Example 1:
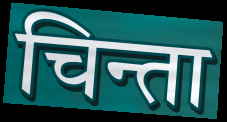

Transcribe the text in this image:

चिन्ता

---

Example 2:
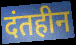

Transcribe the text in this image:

दंतहीन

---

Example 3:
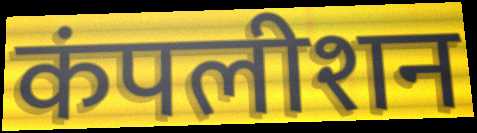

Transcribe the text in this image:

कंपलीशन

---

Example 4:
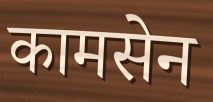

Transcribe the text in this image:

कामसेन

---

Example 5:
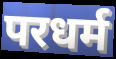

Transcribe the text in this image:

परधर्म